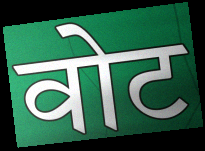
वोट